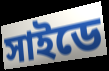
সাইডে